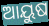
ଆୟୁଷ